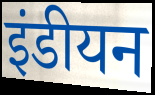
इंडीयन